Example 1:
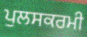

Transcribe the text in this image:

ਪੁਲਸਕਰਮੀ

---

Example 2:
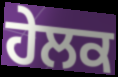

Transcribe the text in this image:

ਹੇਲਕ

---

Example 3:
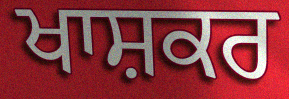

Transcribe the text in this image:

ਖਾਸ਼ਕਰ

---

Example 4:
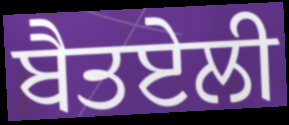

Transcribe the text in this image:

ਬੈਤਏਲੀ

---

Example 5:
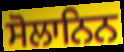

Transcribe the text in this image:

ਸੋਲਾਨਿਨ